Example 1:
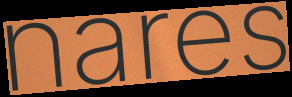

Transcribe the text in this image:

nares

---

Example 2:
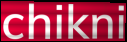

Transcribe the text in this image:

chikni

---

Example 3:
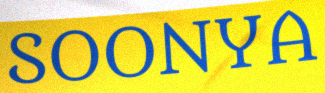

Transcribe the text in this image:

SOONYA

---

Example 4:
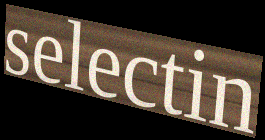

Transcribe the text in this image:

selectin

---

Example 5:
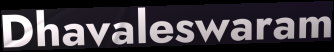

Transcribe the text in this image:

Dhavaleswaram